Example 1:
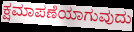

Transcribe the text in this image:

ಕ್ಷಮಾಪಣೆಯಾಗುವುದು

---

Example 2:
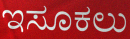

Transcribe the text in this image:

ಇಸೂಕಲು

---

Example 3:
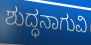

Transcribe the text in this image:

ಶುದ್ಧನಾಗುವಿ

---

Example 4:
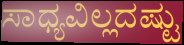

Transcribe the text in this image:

ಸಾಧ್ಯವಿಲ್ಲದಷ್ಟು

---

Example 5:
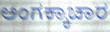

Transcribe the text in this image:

ಅಂಗಕ್ಕಾಚಾರ